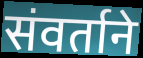
संवर्ताने